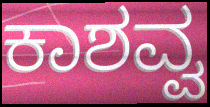
ಕಾಶವ್ವ